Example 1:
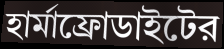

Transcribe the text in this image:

হার্মাফ্রোডাইটের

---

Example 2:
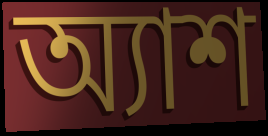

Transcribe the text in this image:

অ্যাশ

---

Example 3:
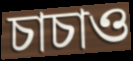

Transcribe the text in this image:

চাচাও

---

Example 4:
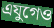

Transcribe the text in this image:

এযুগেও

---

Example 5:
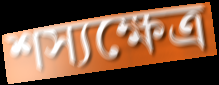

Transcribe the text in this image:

শস্যক্ষেত্র